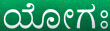
ಯೋಗಃ